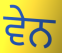
ਵੇਨ